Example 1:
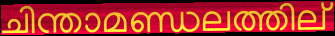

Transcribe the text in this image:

ചിന്താമണ്ഡലത്തില്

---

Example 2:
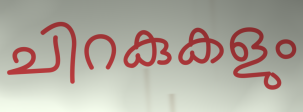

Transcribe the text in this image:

ചിറകുകളും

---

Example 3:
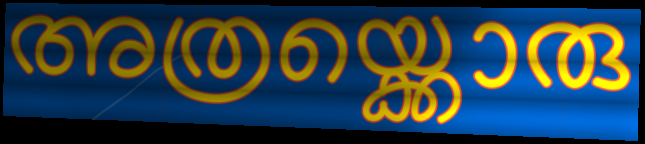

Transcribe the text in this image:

അത്രയ്ക്കൊരു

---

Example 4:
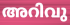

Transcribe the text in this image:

അറിവു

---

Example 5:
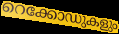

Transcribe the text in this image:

റെക്കോഡുകളും